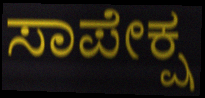
ಸಾಪೇಕ್ಷ